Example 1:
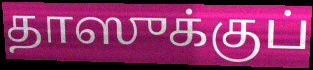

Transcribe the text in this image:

தாஸுக்குப்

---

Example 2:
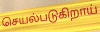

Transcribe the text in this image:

செயல்படுகிறாய்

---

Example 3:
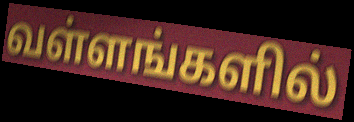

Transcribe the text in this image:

வள்ளங்களில்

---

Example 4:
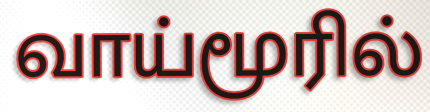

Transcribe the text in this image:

வாய்மூரில்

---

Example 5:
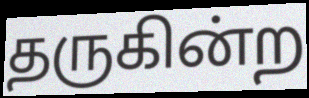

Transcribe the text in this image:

தருகின்ற